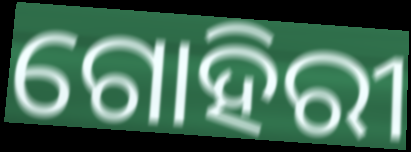
ଗୋହିରୀ